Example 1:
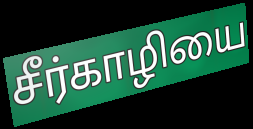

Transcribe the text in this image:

சீர்காழியை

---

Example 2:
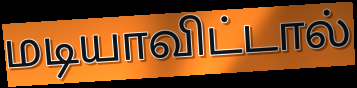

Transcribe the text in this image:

மடியாவிட்டால்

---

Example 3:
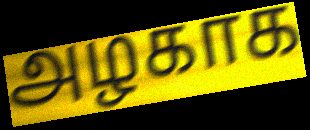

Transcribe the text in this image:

அழகாக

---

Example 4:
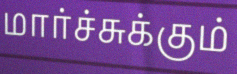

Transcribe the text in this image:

மார்ச்சுக்கும்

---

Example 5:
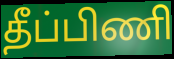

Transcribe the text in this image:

தீப்பிணி